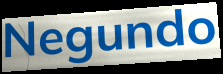
Negundo